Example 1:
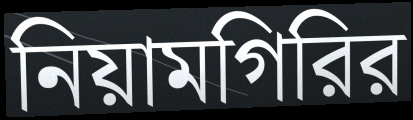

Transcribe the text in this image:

নিয়ামগিরির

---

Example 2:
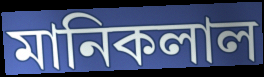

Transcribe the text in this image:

মানিকলাল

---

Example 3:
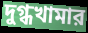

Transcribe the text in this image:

দুগ্ধখামার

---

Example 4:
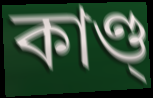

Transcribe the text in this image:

কাণ্ড্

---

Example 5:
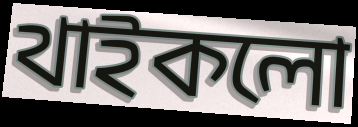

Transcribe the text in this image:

থাইকলো